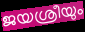
ജയശ്രീയും